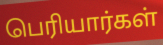
பெரியார்கள்